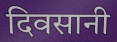
दिवसानी